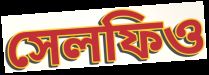
সেলফিও